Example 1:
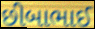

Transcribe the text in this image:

છીબાભાઈ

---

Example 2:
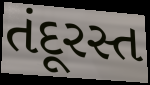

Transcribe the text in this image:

તંદૂરસ્ત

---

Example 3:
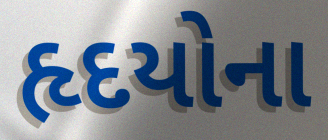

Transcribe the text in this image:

હૃદયોના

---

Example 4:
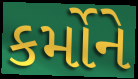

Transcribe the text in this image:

કર્મોને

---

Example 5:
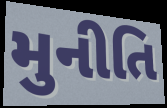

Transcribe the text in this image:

મુનીતિ